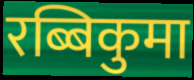
रब्बिकुमा